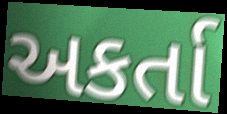
અકર્તા